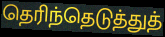
தெரிந்தெடுத்துத்